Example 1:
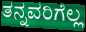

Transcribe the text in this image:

ತನ್ನವರಿಗೆಲ್ಲ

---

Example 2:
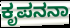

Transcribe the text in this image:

ಕೃಪನನಾ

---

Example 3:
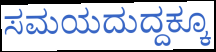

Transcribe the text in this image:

ಸಮಯದುದ್ದಕ್ಕೂ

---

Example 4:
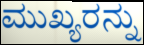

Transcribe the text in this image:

ಮುಖ್ಯರನ್ನು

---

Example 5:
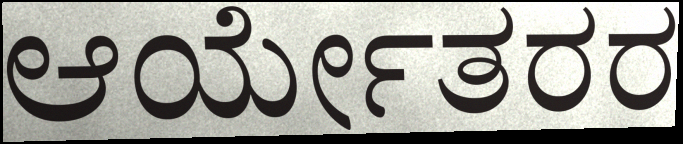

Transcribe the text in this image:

ಆರ್ಯೇತರರ